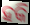
ହକି